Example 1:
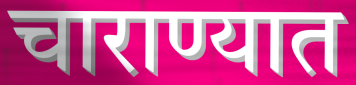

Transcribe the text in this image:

चाराण्यात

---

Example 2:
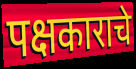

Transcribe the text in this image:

पक्षकाराचे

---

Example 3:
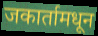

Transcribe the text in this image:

जकार्तामधून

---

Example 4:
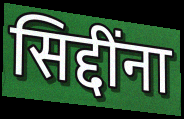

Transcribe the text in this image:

सिद्दींना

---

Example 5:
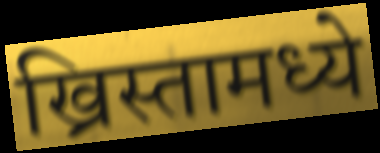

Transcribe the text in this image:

ख्रिस्तामध्ये